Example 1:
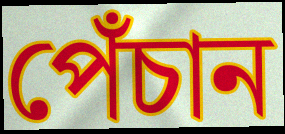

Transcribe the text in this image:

পেঁচান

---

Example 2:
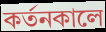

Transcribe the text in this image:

কর্তনকালে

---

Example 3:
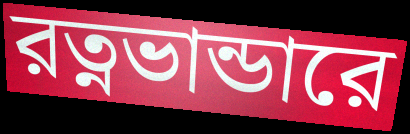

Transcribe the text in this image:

রত্নভান্ডারে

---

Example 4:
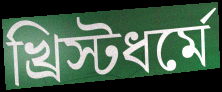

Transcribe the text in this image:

খ্রিস্টধর্মে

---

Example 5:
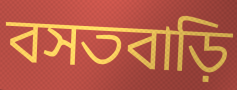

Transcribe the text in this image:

বসতবাড়ি